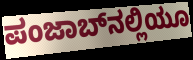
ಪಂಜಾಬ್‌ನಲ್ಲಿಯೂ